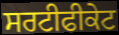
ਸਰਟੀਫੀਕੇਟ